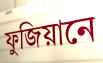
ফুজিয়ানে